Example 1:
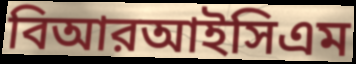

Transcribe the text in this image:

বিআরআইসিএম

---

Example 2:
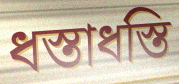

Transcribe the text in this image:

ধস্তাধস্তি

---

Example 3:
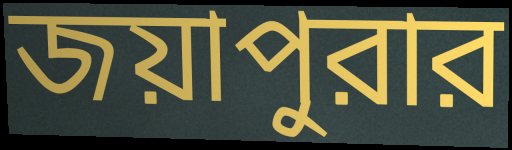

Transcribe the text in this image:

জয়াপুরার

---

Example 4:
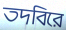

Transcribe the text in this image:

তদবিরে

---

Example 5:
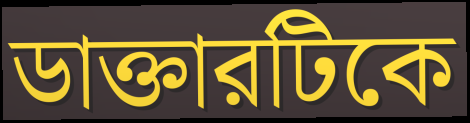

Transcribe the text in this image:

ডাক্তারটিকে